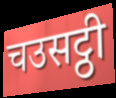
चउसट्ठी